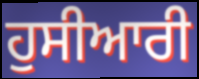
ਹੁਸੀਆਰੀ